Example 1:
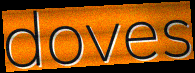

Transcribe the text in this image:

doves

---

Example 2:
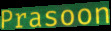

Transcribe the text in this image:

Prasoon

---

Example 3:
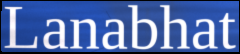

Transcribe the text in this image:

Lanabhat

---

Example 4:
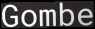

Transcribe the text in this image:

Gombe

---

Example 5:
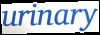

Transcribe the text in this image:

urinary